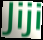
Jiji